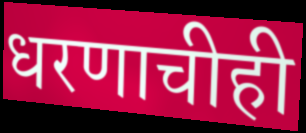
धरणाचीही